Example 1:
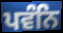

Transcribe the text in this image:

ਪਵੰਨਿ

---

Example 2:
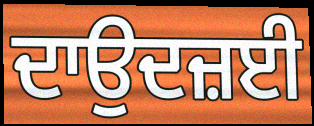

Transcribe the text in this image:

ਦਾਉਦਜ਼ਈ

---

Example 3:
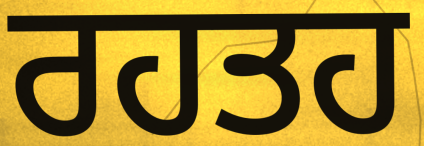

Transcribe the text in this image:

ਰਹਤਹ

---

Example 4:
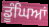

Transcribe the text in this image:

ਡੂੰਘਿਆਂ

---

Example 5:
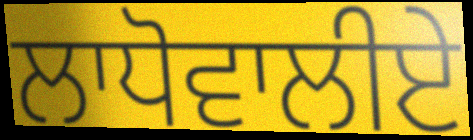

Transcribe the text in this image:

ਲਾਧੋਵਾਲੀਏ